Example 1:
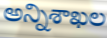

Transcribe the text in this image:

అన్నిశాఖల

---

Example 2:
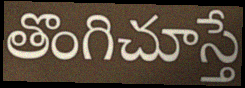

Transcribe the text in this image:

తొంగిచూస్తే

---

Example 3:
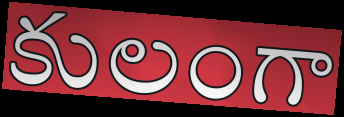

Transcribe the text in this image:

కులంగా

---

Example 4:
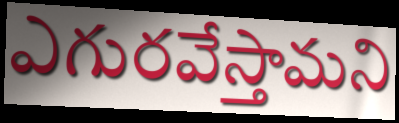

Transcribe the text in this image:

ఎగురవేస్తామని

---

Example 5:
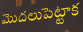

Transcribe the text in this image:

మొదలుపెట్టాక